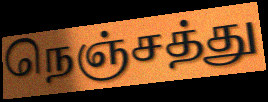
நெஞ்சத்து